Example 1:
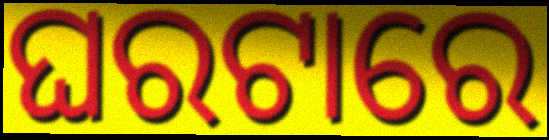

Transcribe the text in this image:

ଘରଟାରେ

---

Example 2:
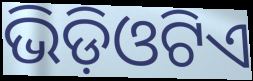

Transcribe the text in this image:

ଭିଡ଼ିଓଟିଏ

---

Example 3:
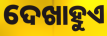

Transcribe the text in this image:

ଦେଖାହୁଏ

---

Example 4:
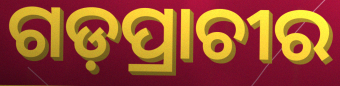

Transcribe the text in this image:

ଗଡ଼ପ୍ରାଚୀର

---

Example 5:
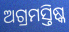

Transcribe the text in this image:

ଅଗ୍ରମସ୍ତିଷ୍କ